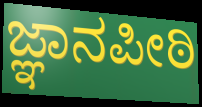
ಜ್ಞಾನಪೀಠಿ